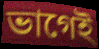
ভাগেই